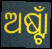
ଅଷ୍ଟାଁ